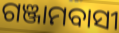
ଗଞ୍ଜାମବାସୀ